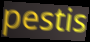
pestis